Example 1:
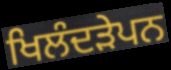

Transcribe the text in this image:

ਖਿਲੰਦੜੇਪਨ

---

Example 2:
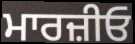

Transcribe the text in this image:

ਮਾਰਜ਼ੀਓ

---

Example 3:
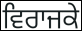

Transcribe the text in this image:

ਵਿਰਾਜਕੇ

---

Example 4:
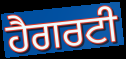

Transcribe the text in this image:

ਹੈਗਰਟੀ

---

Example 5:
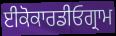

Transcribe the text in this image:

ਈਕੋਕਾਰਡੀਓਗ੍ਰਾਮ